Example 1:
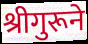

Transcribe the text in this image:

श्रीगुरूने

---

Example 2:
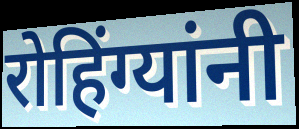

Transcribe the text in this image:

रोहिंग्यांनी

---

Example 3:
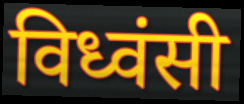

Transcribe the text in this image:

विध्वंसी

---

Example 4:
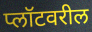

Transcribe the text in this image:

प्लॉटवरील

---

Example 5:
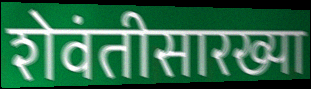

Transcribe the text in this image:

शेवंतीसारख्या